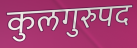
कुलगुरुपद